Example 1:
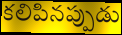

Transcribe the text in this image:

కలిపినప్పుడు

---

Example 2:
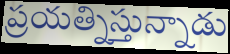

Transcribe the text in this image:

ప్రయత్నిస్తున్నాడు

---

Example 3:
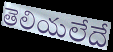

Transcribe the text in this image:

తెలియలేదే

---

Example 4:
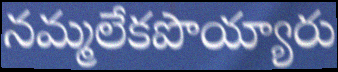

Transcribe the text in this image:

నమ్మలేకపొయ్యారు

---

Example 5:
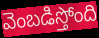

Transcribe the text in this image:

వెంబడిస్తోంది